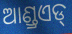
ଆଣ୍ଡ୍ରଏଡ୍